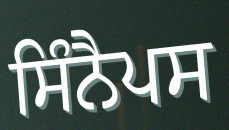
ਸਿੰਨੈਪਸ